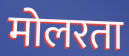
मोलरता